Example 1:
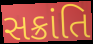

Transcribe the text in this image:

સક્રાંતિ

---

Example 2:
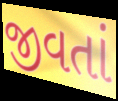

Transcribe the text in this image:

જીવતાં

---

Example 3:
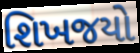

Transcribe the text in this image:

શિખજયો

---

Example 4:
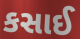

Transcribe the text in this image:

કસાઈ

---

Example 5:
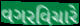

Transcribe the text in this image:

વગરવિચારે